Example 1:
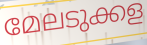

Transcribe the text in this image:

മേലടുക്കള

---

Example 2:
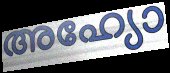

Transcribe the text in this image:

അഹ്യോ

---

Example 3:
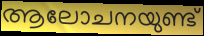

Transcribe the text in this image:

ആലോചനയുണ്ട്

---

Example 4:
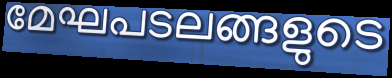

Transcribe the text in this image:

മേഘപടലങ്ങളുടെ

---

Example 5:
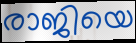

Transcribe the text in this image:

രാജിയെ